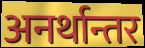
अनर्थान्तर